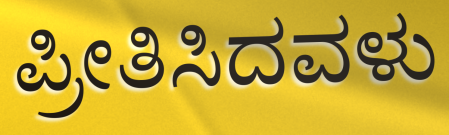
ಪ್ರೀತಿಸಿದವಳು